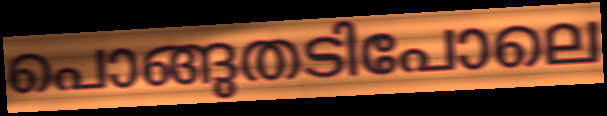
പൊങ്ങുതടിപോലെ